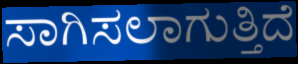
ಸಾಗಿಸಲಾಗುತ್ತಿದೆ